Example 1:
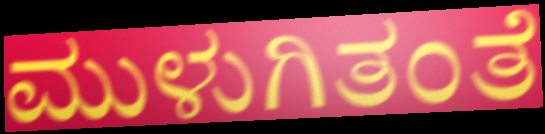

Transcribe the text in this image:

ಮುಳುಗಿತಂತೆ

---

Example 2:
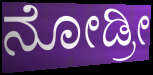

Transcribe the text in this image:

ನೋಡ್ರೀ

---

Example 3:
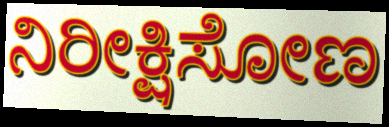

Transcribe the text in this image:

ನಿರೀಕ್ಷಿಸೋಣ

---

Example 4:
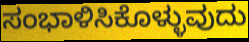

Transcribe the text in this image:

ಸಂಭಾಳಿಸಿಕೊಳ್ಳುವುದು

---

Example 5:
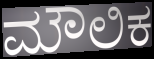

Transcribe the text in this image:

ಮೌಲಿಕ